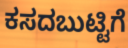
ಕಸದಬುಟ್ಟಿಗೆ